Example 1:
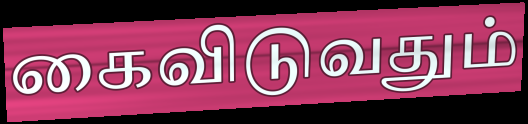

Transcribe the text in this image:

கைவிடுவதும்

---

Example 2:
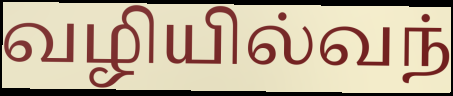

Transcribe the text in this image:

வழியில்வந்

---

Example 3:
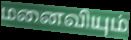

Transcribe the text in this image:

மனைவியும்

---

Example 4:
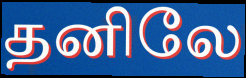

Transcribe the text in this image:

தனிலே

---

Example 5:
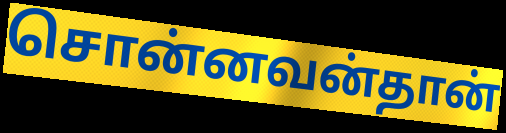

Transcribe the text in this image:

சொன்னவன்தான்